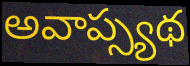
అవాప్స్యథ